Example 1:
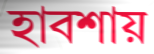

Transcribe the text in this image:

হাবশায়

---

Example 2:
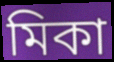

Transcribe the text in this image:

মিকা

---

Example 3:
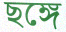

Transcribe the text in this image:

ছঙ্গে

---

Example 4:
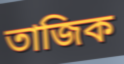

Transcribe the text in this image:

তাজিক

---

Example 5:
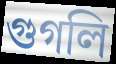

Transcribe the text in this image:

গুগলি